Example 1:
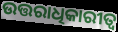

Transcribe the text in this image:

ଉତ୍ତରାଧିକାରୀତ୍ଵ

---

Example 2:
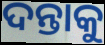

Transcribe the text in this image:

ଦନ୍ତାକୁ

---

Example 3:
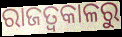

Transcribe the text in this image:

ରାଜତ୍ଵକାଳରୁ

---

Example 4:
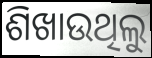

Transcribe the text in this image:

ଶିଖାଉଥିଲୁ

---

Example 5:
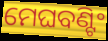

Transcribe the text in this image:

ମେଘବଣ୍ଟିଂ